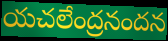
యచలేంద్రనందన